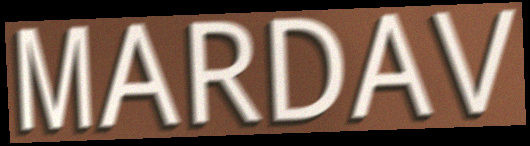
MARDAV